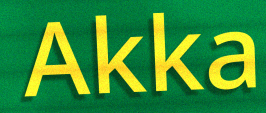
Akka